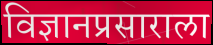
विज्ञानप्रसाराला